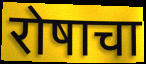
रोषाचा